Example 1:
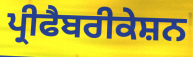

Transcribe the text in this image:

ਪ੍ਰੀਫੈਬਰੀਕੇਸ਼ਨ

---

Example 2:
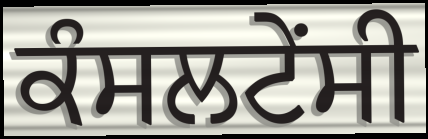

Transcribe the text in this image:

ਕੰਸਲਟੇਂਸੀ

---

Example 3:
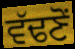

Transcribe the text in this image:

ਵੱਢਣੋਂ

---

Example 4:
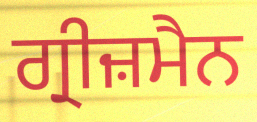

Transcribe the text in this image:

ਗ੍ਰੀਜ਼ਮੈਨ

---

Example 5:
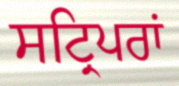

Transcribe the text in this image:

ਸਟ੍ਰਿਪਰਾਂ